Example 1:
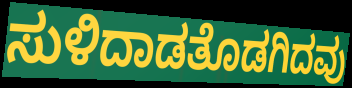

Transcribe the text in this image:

ಸುಳಿದಾಡತೊಡಗಿದವು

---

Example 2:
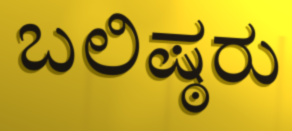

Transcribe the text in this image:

ಬಲಿಷ್ಠರು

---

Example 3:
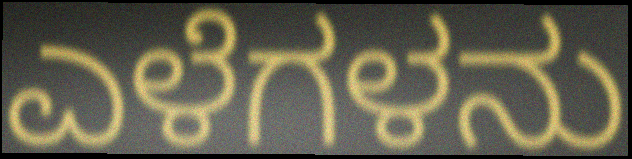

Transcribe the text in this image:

ಎಳೆಗಳನು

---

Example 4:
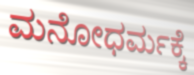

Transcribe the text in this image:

ಮನೋಧರ್ಮಕ್ಕೆ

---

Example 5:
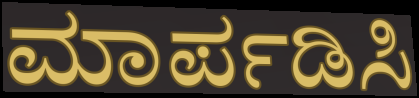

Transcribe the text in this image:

ಮಾರ್ಪಡಿಸಿ